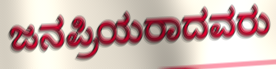
ಜನಪ್ರಿಯರಾದವರು